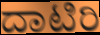
ದಾಟಿರಿ